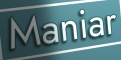
Maniar